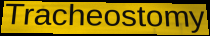
Tracheostomy